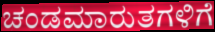
ಚಂಡಮಾರುತಗಳಿಗೆ